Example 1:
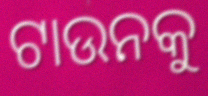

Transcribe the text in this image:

ଟାଉନକୁ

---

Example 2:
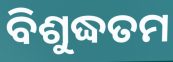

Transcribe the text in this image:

ବିଶୁଦ୍ଧତମ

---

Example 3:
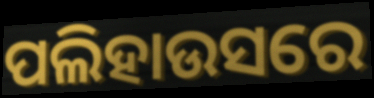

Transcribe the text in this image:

ପଲିହାଉସରେ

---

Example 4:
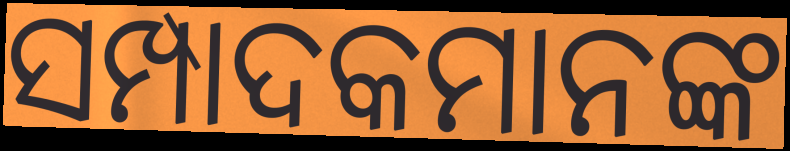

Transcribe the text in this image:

ସମ୍ପାଦକମାନଙ୍କ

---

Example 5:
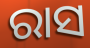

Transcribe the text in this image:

ରାସ